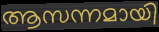
ആസന്നമായി